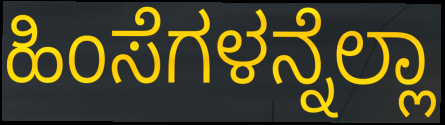
ಹಿಂಸೆಗಳನ್ನೆಲ್ಲಾ